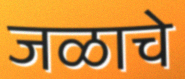
जळाचे